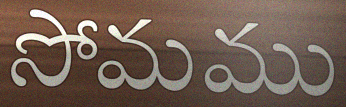
సోమము